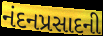
નંદનપ્રસાદની